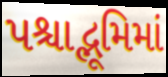
પશ્ચાદ્ભૂમિમાં